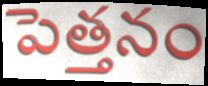
పెత్తనం